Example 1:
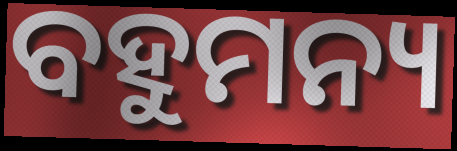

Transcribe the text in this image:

ବହୁମନ୍ୟ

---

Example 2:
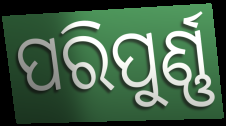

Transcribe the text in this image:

ପରିପୁର୍ଣ୍ଣ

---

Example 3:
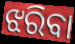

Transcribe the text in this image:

ଝରିବା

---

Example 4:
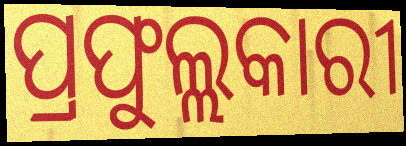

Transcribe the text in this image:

ପ୍ରଫୁଲ୍ଲକାରୀ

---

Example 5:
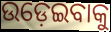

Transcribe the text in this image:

ଉଡ଼େଇବାକୁ